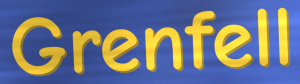
Grenfell